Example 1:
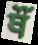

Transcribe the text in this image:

ਥੌਂ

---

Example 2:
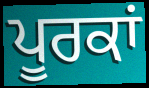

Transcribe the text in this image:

ਪੂਰਕਾਂ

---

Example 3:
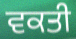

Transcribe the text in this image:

ਵਕਤੀ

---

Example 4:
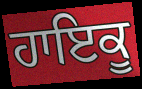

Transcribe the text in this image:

ਹਾਇਕੂ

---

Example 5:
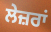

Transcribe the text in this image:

ਲੇਜ਼ਰਾਂ